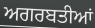
ਅਗਰਬਤੀਆਂ